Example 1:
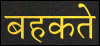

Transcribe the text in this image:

बहकते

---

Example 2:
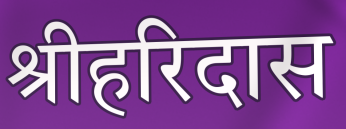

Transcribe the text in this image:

श्रीहरिदास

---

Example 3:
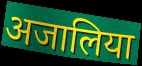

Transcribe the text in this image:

अजालिया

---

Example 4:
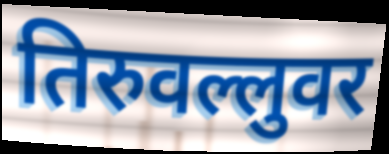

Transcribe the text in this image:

तिरुवल्लुवर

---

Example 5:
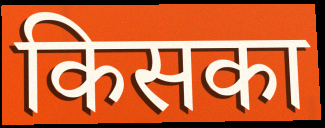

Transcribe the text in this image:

किसका